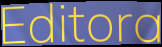
Editora